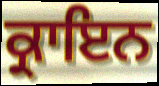
ਕ੍ਰਾਇਨ